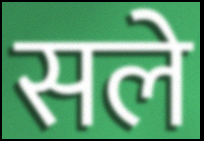
सले